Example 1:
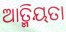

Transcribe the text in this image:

ଆତ୍ମିୟତା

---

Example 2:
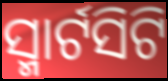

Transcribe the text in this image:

ସ୍ମାର୍ଟସିଟି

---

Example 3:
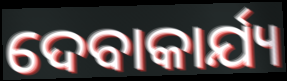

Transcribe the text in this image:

ଦେବାକାର୍ଯ୍ୟ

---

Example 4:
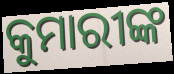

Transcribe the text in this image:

କୁମାରୀଙ୍କ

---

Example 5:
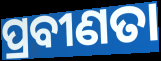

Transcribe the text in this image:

ପ୍ରବୀଣତା